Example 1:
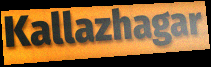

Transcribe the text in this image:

Kallazhagar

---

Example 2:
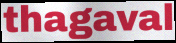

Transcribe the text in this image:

thagaval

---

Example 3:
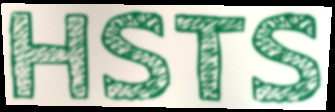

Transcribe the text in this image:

HSTS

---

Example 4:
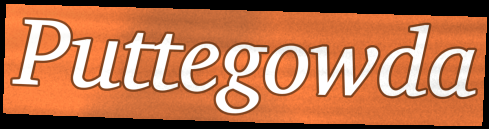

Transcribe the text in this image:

Puttegowda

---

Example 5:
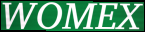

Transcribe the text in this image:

WOMEX